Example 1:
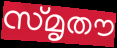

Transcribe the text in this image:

സ്മൃതൗ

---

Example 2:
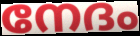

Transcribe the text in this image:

നേദം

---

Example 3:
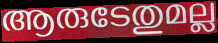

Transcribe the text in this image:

ആരുടേതുമല്ല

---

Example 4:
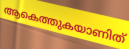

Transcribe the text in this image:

ആകെത്തുകയാണിത്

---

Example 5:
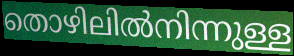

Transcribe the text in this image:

തൊഴിലിൽനിന്നുള്ള